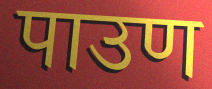
पाउण